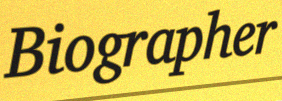
Biographer